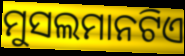
ମୁସଲମାନଟିଏ